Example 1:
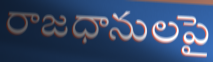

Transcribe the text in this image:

రాజధానులపై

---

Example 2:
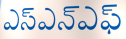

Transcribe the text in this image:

ఎస్ఎన్ఎఫ్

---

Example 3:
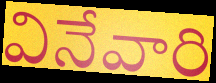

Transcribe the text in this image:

వినేవారి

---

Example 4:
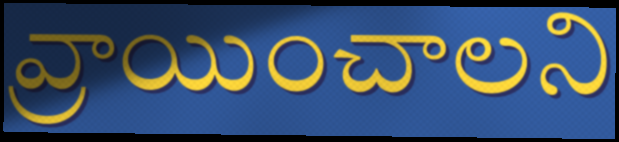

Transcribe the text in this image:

వ్రాయించాలని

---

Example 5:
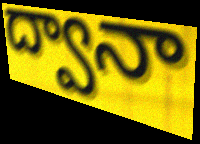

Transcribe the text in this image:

ద్వానా